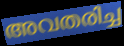
അവതരിച്ച